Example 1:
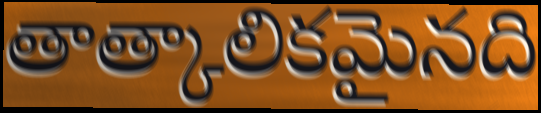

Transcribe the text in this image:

తాత్కాలికమైనది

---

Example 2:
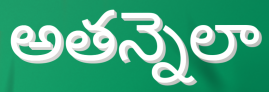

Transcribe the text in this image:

అతన్నెలా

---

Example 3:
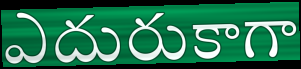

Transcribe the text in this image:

ఎదురుకాగా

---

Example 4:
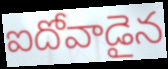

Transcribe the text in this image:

ఐదోవాడైన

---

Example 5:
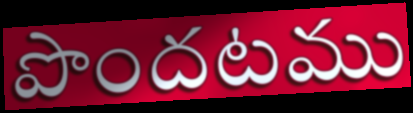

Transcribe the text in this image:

పొందటము